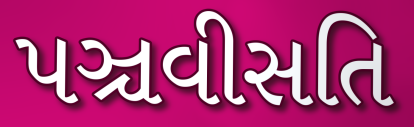
પઞ્ચવીસતિ